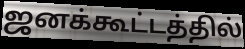
ஜனக்கூட்டத்தில்